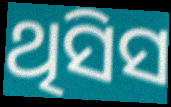
ଥିସିସ